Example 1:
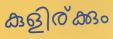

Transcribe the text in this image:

കുളിര്ക്കും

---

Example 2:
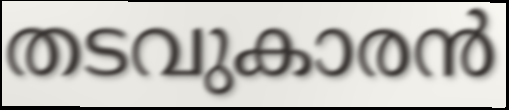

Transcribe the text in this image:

തടവുകാരൻ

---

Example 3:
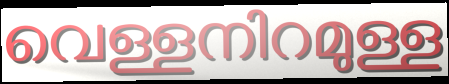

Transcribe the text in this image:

വെള്ളനിറമുള്ള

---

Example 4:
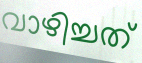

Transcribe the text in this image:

വാഴിച്ചത്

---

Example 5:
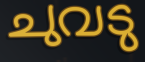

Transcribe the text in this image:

ചുവടു